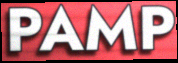
PAMP